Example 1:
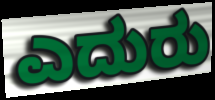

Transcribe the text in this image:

ಎದುರು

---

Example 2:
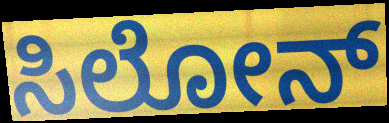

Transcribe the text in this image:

ಸಿಲೋನ್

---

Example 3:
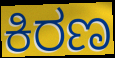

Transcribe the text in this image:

ಕಿರಣ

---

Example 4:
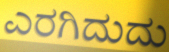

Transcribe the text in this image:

ಎರಗಿದುದು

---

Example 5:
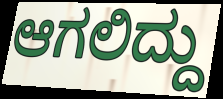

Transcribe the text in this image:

ಆಗಲಿದ್ದು